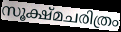
സൂക്ഷ്മചരിത്രം